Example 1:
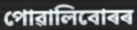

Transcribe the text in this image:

পোৱালিবোৰৰ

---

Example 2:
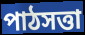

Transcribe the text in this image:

পাঠসত্তা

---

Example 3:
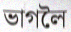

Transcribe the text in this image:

ভাগলৈ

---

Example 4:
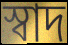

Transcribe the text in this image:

স্বাদ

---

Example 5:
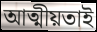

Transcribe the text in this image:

আত্মীয়তাই